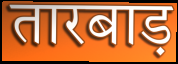
तारबाड़